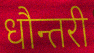
धौन्तरी